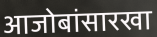
आजोबांसारखा